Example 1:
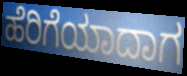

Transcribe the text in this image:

ಹೆರಿಗೆಯಾದಾಗ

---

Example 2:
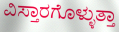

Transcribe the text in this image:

ವಿಸ್ತಾರಗೊಳ್ಳುತ್ತಾ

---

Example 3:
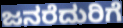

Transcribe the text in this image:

ಜನರೆದುರಿಗೆ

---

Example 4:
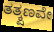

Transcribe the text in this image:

ತತ್ಕ್ಷಣವೇ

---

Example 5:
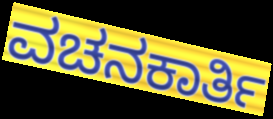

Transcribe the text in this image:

ವಚನಕಾರ್ತಿ